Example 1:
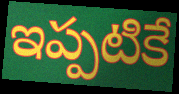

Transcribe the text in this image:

ఇప్పటికే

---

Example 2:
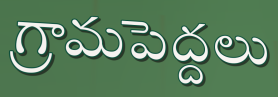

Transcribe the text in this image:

గ్రామపెద్దలు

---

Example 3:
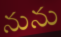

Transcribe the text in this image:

నును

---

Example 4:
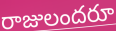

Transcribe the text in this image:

రాజులందరూ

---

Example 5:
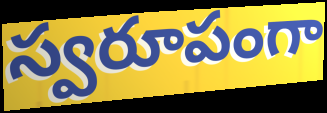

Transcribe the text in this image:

స్వరూపంగా